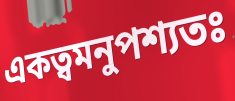
একত্বমনুপশ্যতঃ